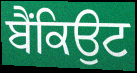
ਬੈਂਕਿਉਟ